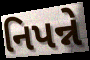
નિપન્ને